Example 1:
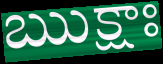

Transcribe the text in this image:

ఋక్షాః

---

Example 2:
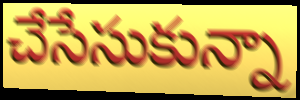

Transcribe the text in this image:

చేసేసుకున్నా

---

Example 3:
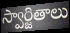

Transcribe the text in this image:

స్వార్జితాలు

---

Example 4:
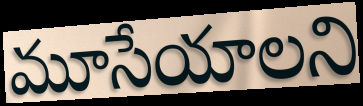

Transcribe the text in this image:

మూసేయాలని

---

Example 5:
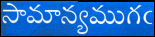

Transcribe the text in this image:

సామాన్యముగఁ